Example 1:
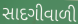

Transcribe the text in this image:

સાદગીવાળી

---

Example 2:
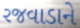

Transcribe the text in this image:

રજવાડાને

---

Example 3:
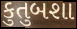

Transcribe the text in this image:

કુતુબશા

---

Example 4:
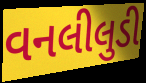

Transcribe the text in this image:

વનલીલુડી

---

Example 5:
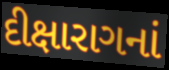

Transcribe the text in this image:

દીક્ષારાગનાં